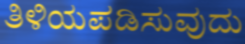
ತಿಳಿಯಪಡಿಸುವುದು